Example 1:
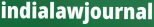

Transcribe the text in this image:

indialawjournal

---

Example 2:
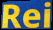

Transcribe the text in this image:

Rei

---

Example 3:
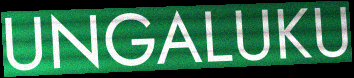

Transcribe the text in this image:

UNGALUKU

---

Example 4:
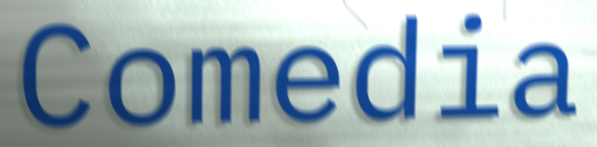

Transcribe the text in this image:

Comedia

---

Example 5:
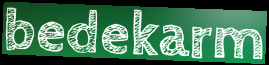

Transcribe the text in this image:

bedekarm